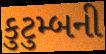
કુટુમ્બની